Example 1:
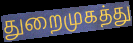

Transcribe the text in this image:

துறைமுகத்து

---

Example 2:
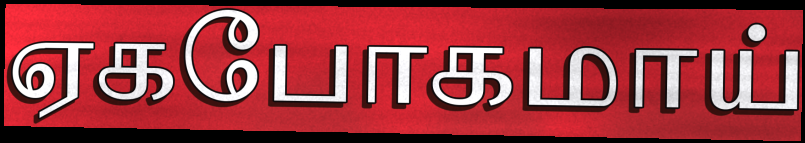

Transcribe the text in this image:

ஏகபோகமாய்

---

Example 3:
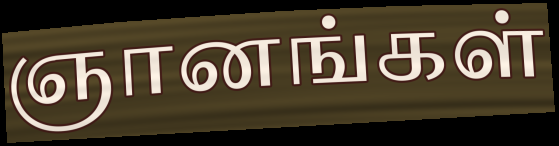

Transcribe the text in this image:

ஞானங்கள்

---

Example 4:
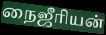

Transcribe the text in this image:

நைஜீரியன்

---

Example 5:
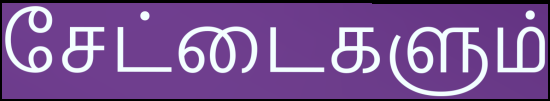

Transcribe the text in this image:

சேட்டைகளும்